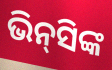
ଭିନ୍‍ସିଙ୍କ